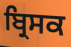
ਬ੍ਰਿਸਕ